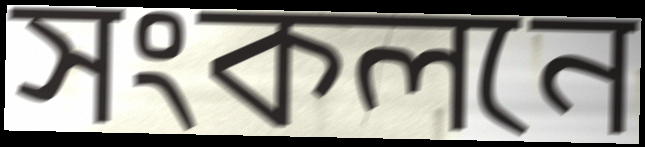
সংকলনে